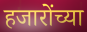
हजारोंच्या